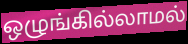
ஒழுங்கில்லாமல்